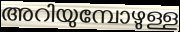
അറിയുമ്പോഴുള്ള